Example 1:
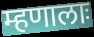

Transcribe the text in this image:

म्हणालाः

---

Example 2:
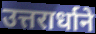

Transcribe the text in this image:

उत्तरार्धाने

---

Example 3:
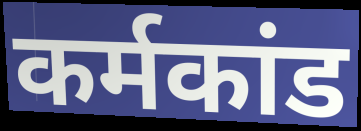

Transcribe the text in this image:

कर्मकांड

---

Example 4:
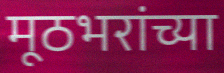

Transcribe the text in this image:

मूठभरांच्या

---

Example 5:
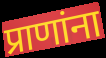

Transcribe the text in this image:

प्राणांना